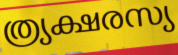
ത്ര്യക്ഷരസ്യ